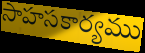
సాహసకార్యము